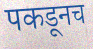
पकडूनच